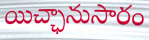
యిచ్ఛానుసారం